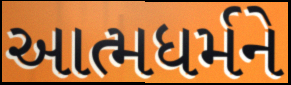
આત્મધર્મને